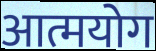
आत्मयोग